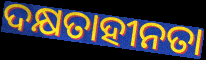
ଦକ୍ଷତାହୀନତା